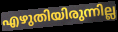
എഴുതിയിരുന്നില്ല